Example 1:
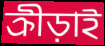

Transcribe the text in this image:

ক্রীড়াই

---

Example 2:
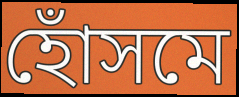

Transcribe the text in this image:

হোঁসমে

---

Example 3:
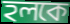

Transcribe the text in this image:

হলকে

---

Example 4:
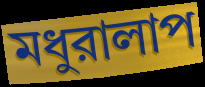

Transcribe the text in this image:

মধুরালাপ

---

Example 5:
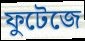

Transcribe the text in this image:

ফুটেজে